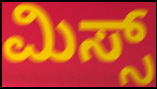
ಮಿಸ್ಸ್